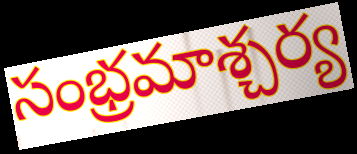
సంభ్రమాశ్చర్య